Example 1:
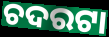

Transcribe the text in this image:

ଚଦରଟା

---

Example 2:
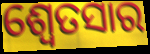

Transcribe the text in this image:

ଶ୍ଵେତସାର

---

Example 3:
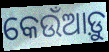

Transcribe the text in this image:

କେଉଁଆଡ଼ୁ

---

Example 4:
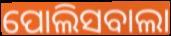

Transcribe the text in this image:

ପୋଲିସବାଲା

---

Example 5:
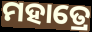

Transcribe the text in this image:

ମହାତ୍ରେ